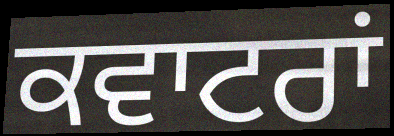
ਕਵਾਟਰਾਂ